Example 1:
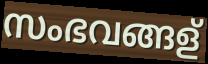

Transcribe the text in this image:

സംഭവങ്ങള്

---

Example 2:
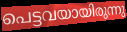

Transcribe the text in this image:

പെട്ടവയായിരുന്നു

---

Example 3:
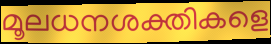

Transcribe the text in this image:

മൂലധനശക്തികളെ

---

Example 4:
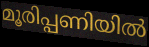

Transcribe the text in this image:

മൂരിപ്പണിയിൽ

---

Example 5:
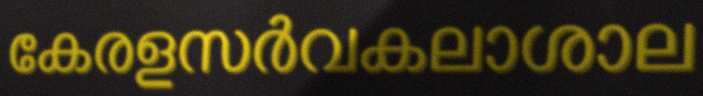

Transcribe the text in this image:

കേരളസർവകലാശാല